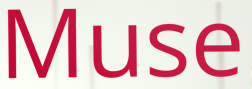
Muse